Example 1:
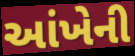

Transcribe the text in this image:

આંખેની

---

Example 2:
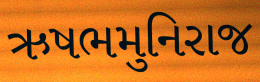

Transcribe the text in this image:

ઋષભમુનિરાજ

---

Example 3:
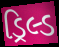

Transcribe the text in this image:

ડ્રિલ્ડ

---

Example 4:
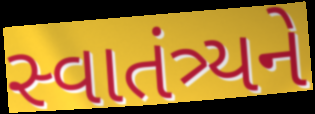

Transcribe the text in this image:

સ્વાતંત્ર્યને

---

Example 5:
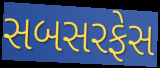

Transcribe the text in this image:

સબસરફેસ